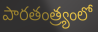
పారతంత్ర్యంలో